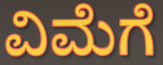
ವಿಮೆಗೆ